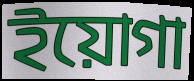
ইয়োগা